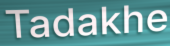
Tadakhe